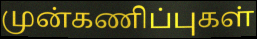
முன்கணிப்புகள்